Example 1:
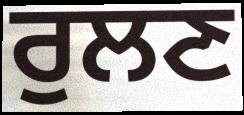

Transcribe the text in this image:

ਰੁਲਣ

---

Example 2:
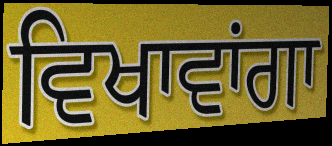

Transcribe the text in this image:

ਵਿਖਾਵਾਂਗਾ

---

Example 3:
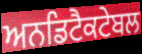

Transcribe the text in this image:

ਅਨਡਿਟੈਕਟੇਬਲ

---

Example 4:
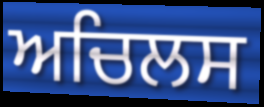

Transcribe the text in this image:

ਅਚਿਲਸ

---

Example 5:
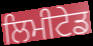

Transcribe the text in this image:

ਲਿਮੀਟੇਡ